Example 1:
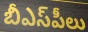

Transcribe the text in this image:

బీఎస్‌పీలు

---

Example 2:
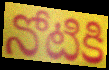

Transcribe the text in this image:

నోటికి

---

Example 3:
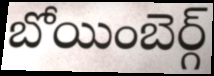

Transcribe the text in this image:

బోయింబెర్గ్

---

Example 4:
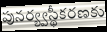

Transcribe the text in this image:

పునర్య్వస్థీకరణకు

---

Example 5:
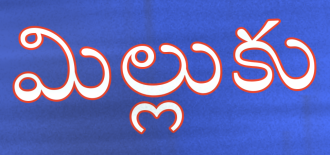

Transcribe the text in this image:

మిల్లుకు